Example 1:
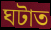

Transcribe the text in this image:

ঘটাত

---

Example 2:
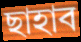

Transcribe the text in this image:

ছাহাব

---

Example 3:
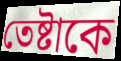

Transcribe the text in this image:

তেষ্টাকে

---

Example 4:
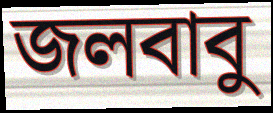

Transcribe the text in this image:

জলবাবু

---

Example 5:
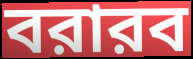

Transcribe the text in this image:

বরারব